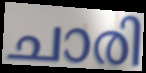
ചാരി